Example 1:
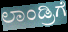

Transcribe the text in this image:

ಲಾಂಡ್ರಿಗೆ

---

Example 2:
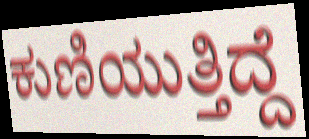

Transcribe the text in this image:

ಕುಣಿಯುತ್ತಿದ್ದೆ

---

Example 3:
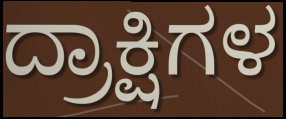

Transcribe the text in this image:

ದ್ರಾಕ್ಷಿಗಳ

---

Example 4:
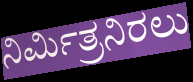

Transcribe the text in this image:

ನಿರ್ಮಿತ್ರನಿರಲು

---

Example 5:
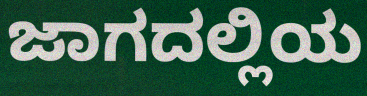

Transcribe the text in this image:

ಜಾಗದಲ್ಲಿಯ